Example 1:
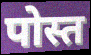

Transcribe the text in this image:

पोस्त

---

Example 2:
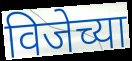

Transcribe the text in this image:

विजेच्या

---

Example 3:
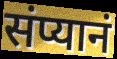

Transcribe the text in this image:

संप्यानं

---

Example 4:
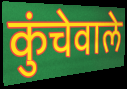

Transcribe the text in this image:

कुंचेवाले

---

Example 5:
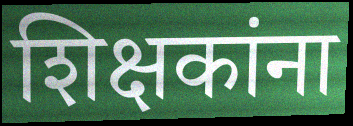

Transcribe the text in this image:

शिक्षकांना